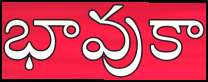
భావుకా